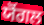
ਯੋਂਗਲ